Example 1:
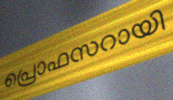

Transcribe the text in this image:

പ്രൊഫസറായി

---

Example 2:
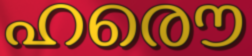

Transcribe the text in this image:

ഹരൌ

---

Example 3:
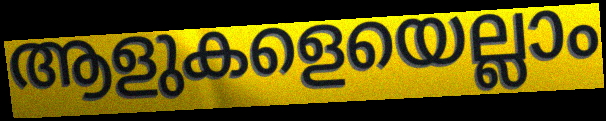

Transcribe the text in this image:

ആളുകളെയെല്ലാം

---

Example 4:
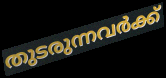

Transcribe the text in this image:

തുടരുന്നവർക്ക്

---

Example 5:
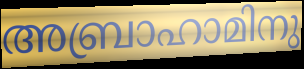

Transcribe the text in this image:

അബ്രാഹാമിനു